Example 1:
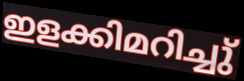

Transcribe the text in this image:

ഇളക്കിമറിച്ചു്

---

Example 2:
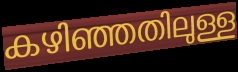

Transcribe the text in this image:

കഴിഞ്ഞതിലുള്ള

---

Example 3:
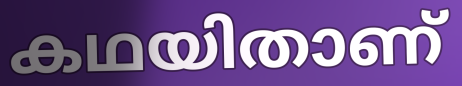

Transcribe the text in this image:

കഥയിതാണ്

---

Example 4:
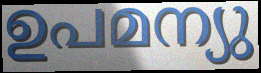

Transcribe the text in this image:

ഉപമന്യു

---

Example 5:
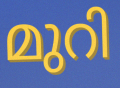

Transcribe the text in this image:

മുറി